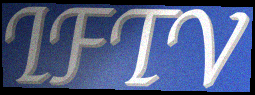
IFTV